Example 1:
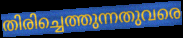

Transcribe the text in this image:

തിരിച്ചെത്തുന്നതുവരെ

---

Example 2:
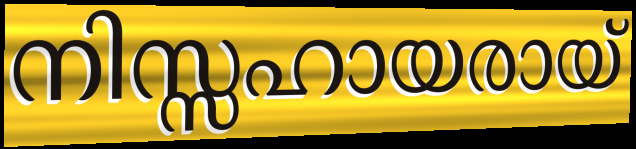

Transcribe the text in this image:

നിസ്സഹായരായ്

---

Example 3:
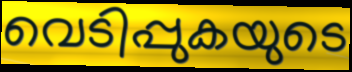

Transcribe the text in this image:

വെടിപ്പുകയുടെ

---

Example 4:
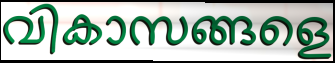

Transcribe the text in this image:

വികാസങ്ങളെ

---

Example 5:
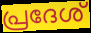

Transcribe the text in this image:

പ്രദേശ്